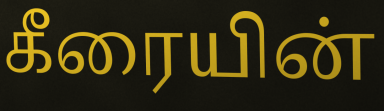
கீரையின்